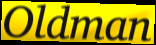
Oldman